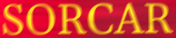
SORCAR